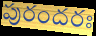
పురందరః